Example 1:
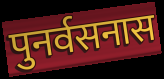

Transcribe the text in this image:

पुनर्वसनास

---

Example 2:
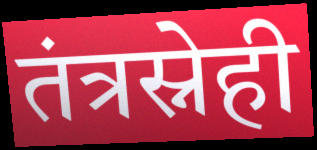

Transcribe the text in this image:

तंत्रस्नेही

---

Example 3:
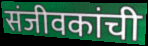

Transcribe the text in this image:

संजीवकांची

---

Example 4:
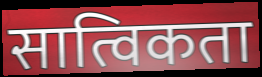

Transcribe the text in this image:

सात्विकता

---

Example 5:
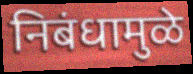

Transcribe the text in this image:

निबंधामुळे